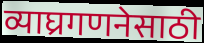
व्याघ्रगणनेसाठी